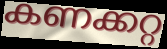
കണക്കറ്റ